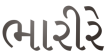
ભારીરે